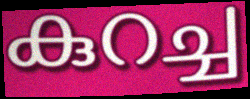
കുറച്ച